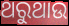
ଥରୁଥାଉ